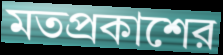
মতপ্রকাশের